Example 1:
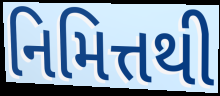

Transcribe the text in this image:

નિમિત્તથી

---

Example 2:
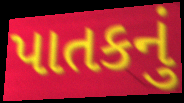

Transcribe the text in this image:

પાતકનું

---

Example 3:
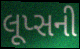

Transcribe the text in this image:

લૂપ્સની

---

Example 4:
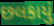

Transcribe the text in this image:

છલકાયું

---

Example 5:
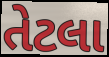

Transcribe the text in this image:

તેટલા